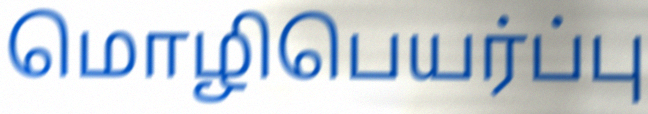
மொழிபெயர்ப்பு